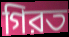
গিরত